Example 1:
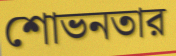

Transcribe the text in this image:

শোভনতার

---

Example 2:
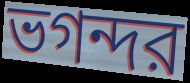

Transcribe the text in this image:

ভগন্দর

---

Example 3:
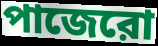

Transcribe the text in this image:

পাজেরো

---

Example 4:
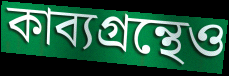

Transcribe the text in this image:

কাব্যগ্রন্থেও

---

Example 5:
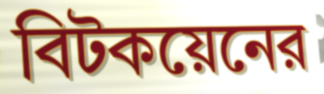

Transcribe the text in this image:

বিটকয়েনের